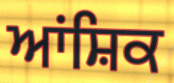
ਆਂਸ਼ਿਕ